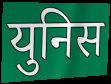
युनिस